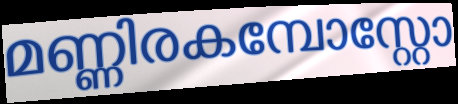
മണ്ണിരകമ്പോസ്റ്റോ